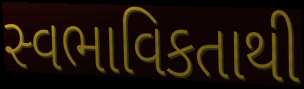
સ્વભાવિકતાથી